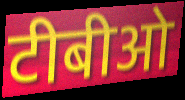
टीबीओ